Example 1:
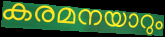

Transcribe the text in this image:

കരമനയാറും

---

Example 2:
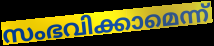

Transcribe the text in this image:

സംഭവിക്കാമെന്ന്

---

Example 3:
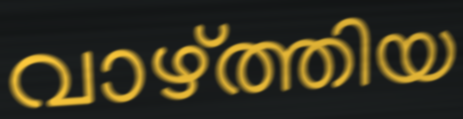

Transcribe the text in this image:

വാഴ്ത്തിയ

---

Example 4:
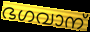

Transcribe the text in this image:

ഭഗവാന്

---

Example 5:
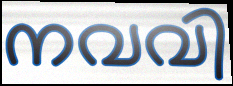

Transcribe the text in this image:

നവവി